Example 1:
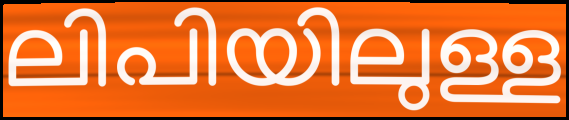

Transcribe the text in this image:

ലിപിയിലുള്ള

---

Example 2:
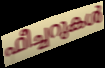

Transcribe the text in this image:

ഫീച്ചറുകൾ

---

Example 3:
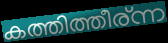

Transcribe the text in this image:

കത്തിത്തീര്ന്ന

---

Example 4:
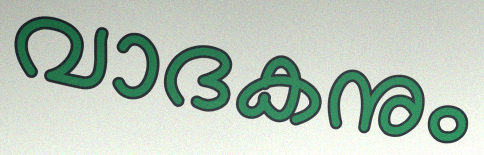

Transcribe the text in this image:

വാദകനും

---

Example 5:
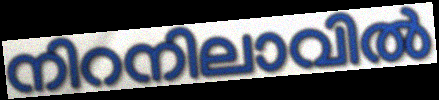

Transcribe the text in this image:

നിറനിലാവിൽ